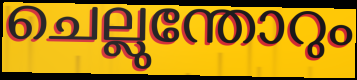
ചെല്ലുന്തോറും